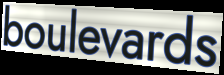
boulevards